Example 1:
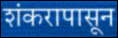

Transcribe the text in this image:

शंकरापासून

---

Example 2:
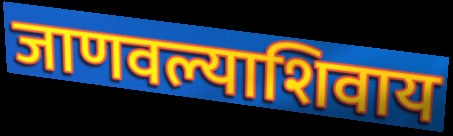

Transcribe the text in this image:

जाणवल्याशिवाय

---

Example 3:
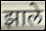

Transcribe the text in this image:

झाले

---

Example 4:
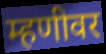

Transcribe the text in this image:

म्हणीवर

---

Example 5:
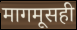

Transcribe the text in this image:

मागमूसही